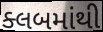
ક્લબમાંથી